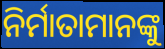
ନିର୍ମାତାମାନଙ୍କୁ